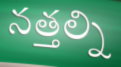
నత్తల్ని